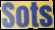
Sots